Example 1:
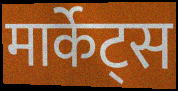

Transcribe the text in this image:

मार्केट्स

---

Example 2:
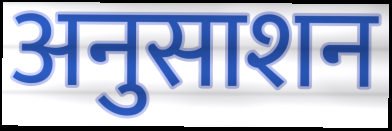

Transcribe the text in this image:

अनुसाशन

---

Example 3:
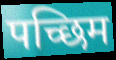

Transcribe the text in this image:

पच्छिम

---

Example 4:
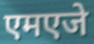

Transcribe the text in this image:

एमएजे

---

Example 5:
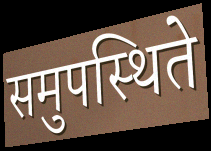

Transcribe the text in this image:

समुपस्थिते